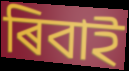
ৰিবাই